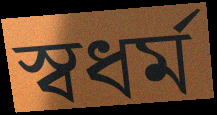
স্বধর্ম